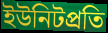
ইউনিটপ্রতি